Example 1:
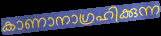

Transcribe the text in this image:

കാണാനാഗ്രഹിക്കുന്ന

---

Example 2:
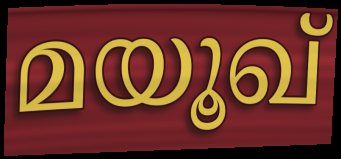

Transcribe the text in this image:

മയൂഖ്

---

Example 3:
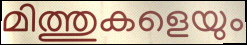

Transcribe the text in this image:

മിത്തുകളെയും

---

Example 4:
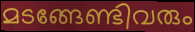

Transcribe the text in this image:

മടങ്ങേണ്ടിവരും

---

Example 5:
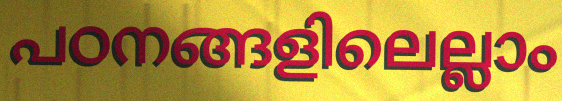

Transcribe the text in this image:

പഠനങ്ങളിലെല്ലാം